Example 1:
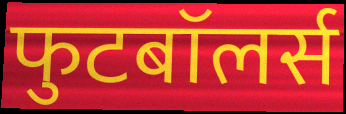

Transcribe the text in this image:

फुटबॉलर्स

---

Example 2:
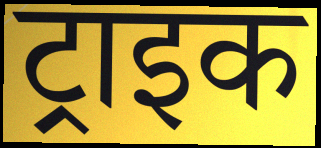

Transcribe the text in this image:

ट्राइक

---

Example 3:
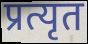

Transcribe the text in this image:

प्रत्यृत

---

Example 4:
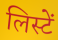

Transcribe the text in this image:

लिस्टें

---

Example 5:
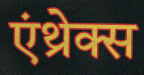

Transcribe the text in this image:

एंथ्रेक्स